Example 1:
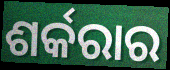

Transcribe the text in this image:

ଶର୍କରାର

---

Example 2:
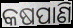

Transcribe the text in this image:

କଷପାଣି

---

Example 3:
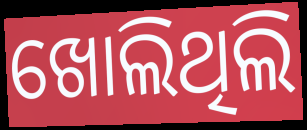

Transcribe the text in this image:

ଖୋଲିଥିଲି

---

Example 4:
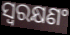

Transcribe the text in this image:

ସ୍ୱରକ୍ଷଣଂ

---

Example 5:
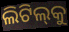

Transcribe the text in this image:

ଲିଟିଲ୍‌କୁ